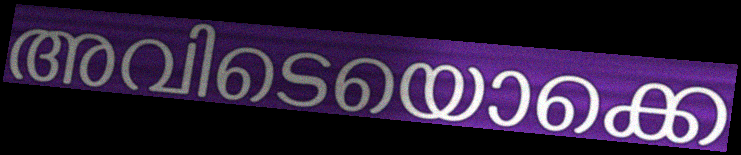
അവിടെയൊക്കെ